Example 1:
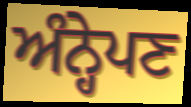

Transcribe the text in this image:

ਅੰਨ੍ਹੇਪਣ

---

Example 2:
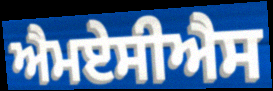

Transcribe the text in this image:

ਐਮਏਸੀਐਸ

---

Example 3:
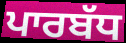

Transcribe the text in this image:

ਪਾਰਬੱਧ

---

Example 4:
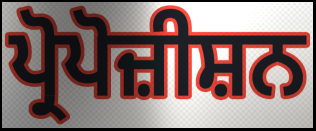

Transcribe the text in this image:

ਪ੍ਰੋਪੋਜ਼ੀਸ਼ਨ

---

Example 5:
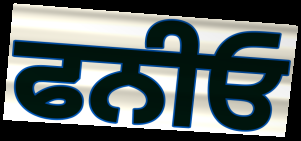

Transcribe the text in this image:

ਫਨੀਓ